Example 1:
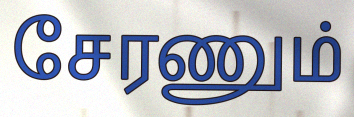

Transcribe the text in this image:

சேரணும்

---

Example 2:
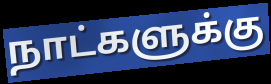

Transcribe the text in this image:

நாட்களுக்கு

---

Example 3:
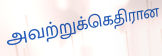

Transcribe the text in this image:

அவற்றுக்கெதிரான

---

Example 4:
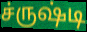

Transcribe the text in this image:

ச்ருஷ்டி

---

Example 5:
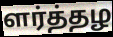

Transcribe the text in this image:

ளர்த்தழ